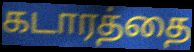
கடாரத்தை